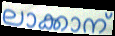
ലാക്കാന്